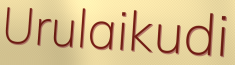
Urulaikudi